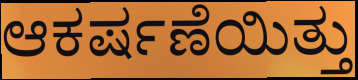
ಆಕರ್ಷಣೆಯಿತ್ತು